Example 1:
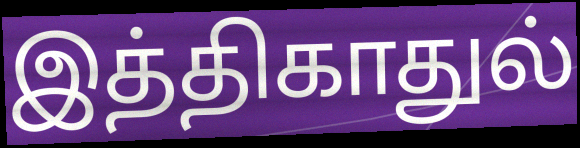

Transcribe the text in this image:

இத்திகாதுல்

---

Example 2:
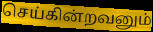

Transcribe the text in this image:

செய்கின்றவனும்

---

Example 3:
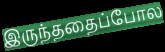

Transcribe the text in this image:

இருந்ததைப்போல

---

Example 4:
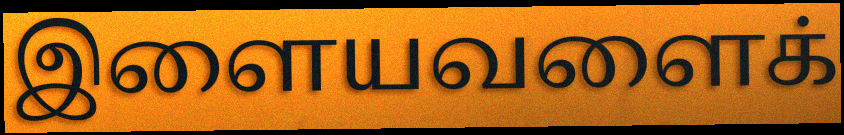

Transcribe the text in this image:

இளையவளைக்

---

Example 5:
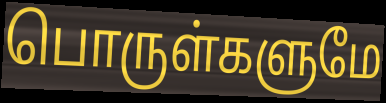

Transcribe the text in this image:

பொருள்களுமே